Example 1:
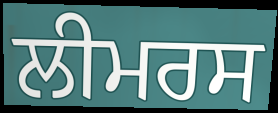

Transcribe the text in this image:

ਲੀਮਰਸ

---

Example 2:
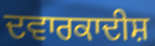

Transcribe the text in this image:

ਦਵਾਰਕਾਦੀਸ਼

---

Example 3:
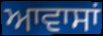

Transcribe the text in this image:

ਆਵਾਸਾਂ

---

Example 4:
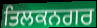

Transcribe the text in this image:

ਤਿਲਕਨਗਰ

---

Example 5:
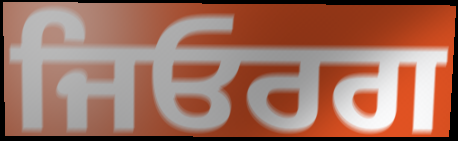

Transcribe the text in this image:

ਜਿਓਰਗ